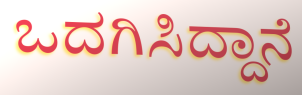
ಒದಗಿಸಿದ್ದಾನೆ